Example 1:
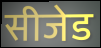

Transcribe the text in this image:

सीजेड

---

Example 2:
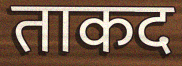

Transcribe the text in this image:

ताकद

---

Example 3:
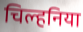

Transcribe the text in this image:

चिल्हनिया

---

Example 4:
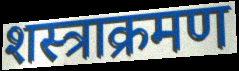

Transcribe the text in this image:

शस्त्राक्रमण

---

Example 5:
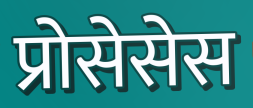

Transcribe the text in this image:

प्रोसेसेस